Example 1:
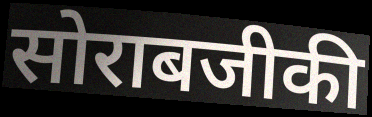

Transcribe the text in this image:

सोराबजीकी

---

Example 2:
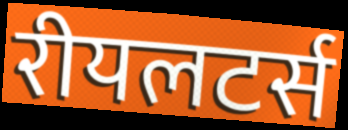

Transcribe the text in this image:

रीयलटर्स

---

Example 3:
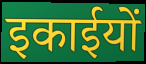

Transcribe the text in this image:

इकाईयों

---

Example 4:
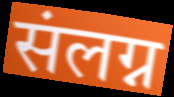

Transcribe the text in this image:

संलग्न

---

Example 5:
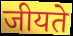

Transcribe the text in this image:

जीयते